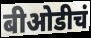
बीओडीचं